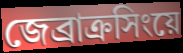
জেব্রাক্রসিংয়ে